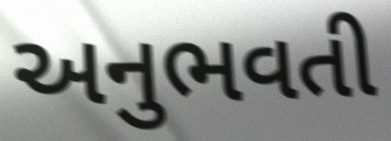
અનુભવતી